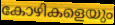
കോഴികളെയും